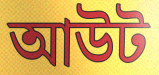
আউট